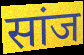
सांज